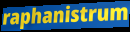
raphanistrum